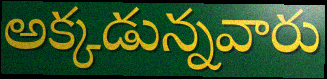
అక్కడున్నవారు